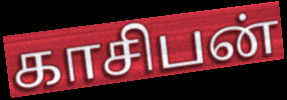
காசிபன்